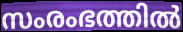
സംരംഭത്തിൽ